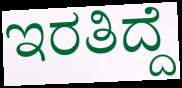
ಇರತಿದ್ದೆ